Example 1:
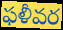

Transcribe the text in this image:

ఫళీవర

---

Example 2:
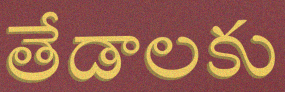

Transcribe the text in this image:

తేడాలకు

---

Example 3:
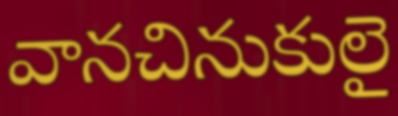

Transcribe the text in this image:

వానచినుకులై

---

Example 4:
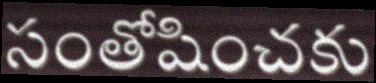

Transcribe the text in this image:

సంతోషించకు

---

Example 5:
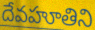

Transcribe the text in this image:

దేవహూతిని